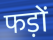
फड़ों